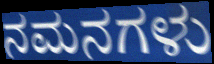
ನಮನಗಳು